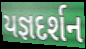
યજ્ઞદર્શન